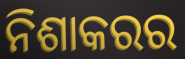
ନିଶାକରର